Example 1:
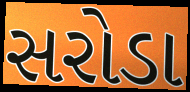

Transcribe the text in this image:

સરોડા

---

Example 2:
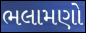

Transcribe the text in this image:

ભલામણો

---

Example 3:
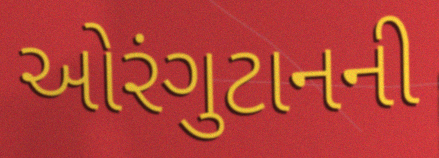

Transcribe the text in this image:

ઓરંગુટાનની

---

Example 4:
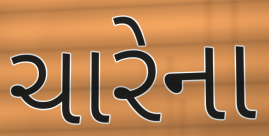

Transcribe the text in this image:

ચારેના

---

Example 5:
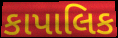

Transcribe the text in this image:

કાપાલિક